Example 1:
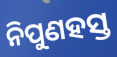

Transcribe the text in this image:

ନିପୁଣହସ୍ତ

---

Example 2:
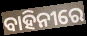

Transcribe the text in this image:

ବାହିନୀରେ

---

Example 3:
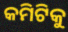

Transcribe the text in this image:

କମିଟିକୁ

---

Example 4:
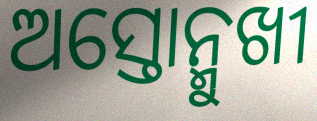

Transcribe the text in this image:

ଅସ୍ତୋନ୍ମୁଖୀ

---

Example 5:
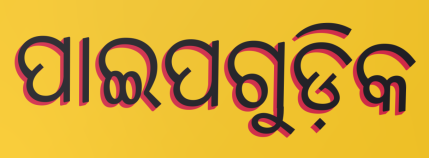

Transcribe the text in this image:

ପାଇପଗୁଡ଼ିକ